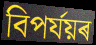
বিপৰ্যয়ৰ